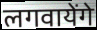
लगवायेंगे